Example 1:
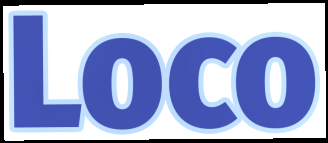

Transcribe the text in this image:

Loco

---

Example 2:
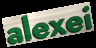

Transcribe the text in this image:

alexei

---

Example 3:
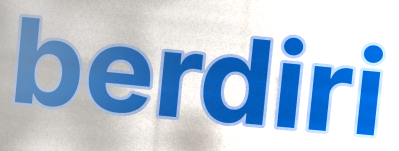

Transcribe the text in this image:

berdiri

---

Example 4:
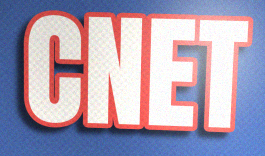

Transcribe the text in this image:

CNET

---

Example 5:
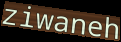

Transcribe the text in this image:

ziwaneh